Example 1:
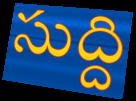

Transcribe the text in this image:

సుద్ది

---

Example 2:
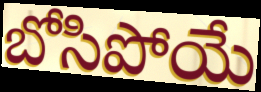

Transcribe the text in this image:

బోసిపోయే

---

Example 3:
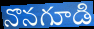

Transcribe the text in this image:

నొనగూడి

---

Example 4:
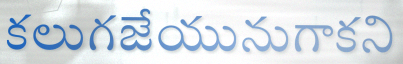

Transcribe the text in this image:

కలుగజేయునుగాకని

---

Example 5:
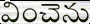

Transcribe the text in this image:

వించెను